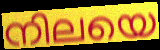
നിലയെ